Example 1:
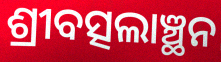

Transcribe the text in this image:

ଶ୍ରୀବତ୍ସଲାଞ୍ଛନ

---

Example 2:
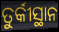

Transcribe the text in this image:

ତୁର୍କୀସ୍ଥାନ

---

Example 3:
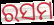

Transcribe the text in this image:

ରସମ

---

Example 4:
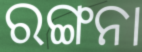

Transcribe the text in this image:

ରଙ୍ଗନା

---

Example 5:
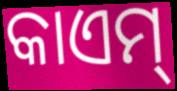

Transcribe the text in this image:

କାଏମ୍